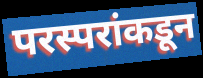
परस्परांकडून